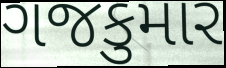
ગજકુમાર